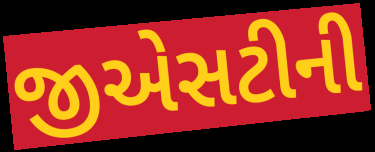
જીએસટીની